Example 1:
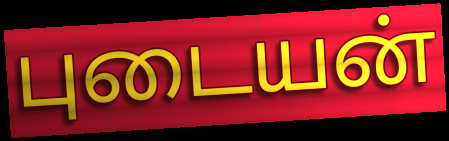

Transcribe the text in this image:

புடையன்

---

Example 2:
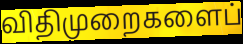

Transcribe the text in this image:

விதிமுறைகளைப்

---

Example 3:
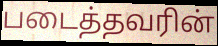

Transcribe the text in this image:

படைத்தவரின்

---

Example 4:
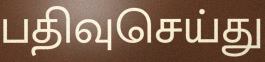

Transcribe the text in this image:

பதிவுசெய்து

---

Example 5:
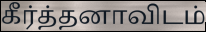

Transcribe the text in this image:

கீர்த்தனாவிடம்